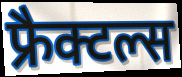
फ्रैक्टल्स